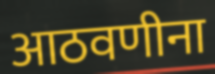
आठवणीना